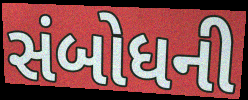
સંબોધની